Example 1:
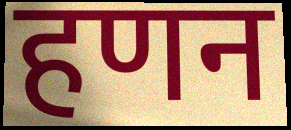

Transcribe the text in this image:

हणन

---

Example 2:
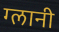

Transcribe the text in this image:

ग्लानी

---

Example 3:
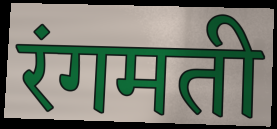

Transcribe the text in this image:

रंगमती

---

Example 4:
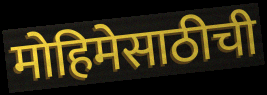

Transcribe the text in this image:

मोहिमेसाठीची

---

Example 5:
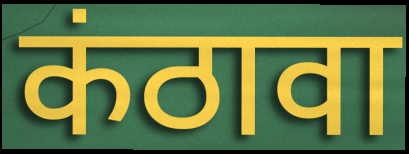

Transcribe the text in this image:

कंठावा